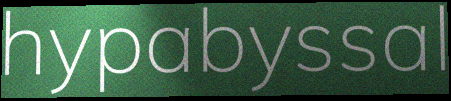
hypabyssal